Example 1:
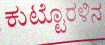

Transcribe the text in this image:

ಕುಟ್ಟೊರಳಿನ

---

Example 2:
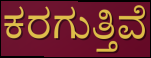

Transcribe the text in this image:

ಕರಗುತ್ತಿವೆ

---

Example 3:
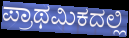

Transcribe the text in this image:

ಪ್ರಾಥಮಿಕದಲ್ಲಿ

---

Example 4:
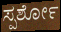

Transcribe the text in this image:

ಸ್ಪರ್ಶೋ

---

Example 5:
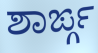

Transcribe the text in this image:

ಶಾರ್ಙ್ಗ